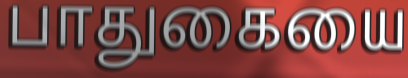
பாதுகையை